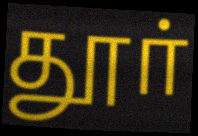
தூர்